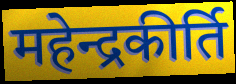
महेन्द्रकीर्ति